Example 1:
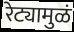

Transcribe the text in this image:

रेट्यामुळं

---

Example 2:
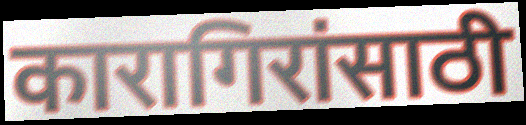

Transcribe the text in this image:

कारागिरांसाठी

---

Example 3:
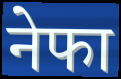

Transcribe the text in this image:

नेफा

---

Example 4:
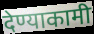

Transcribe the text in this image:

देण्याकामी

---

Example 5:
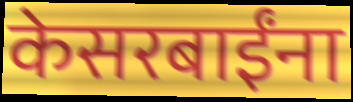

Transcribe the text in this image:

केसरबाईंना